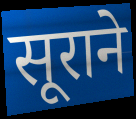
सूराने